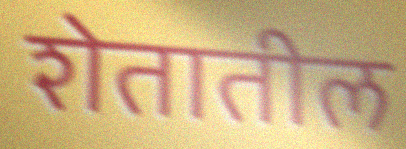
शेतातील